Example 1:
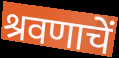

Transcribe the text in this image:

श्रवणाचें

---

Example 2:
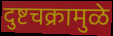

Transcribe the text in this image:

दुष्टचक्रामुळे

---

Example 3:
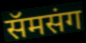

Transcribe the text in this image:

सॅमसंग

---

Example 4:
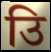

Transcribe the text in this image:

उि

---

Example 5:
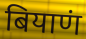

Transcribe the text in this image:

बियाणं